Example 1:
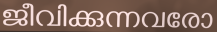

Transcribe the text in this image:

ജീവിക്കുന്നവരോ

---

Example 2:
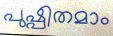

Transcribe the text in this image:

പുഷ്പിതമാം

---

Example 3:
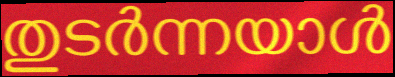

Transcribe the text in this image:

തുടർന്നയാൾ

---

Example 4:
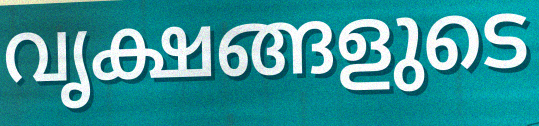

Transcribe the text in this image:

വൃക്ഷങ്ങളുടെ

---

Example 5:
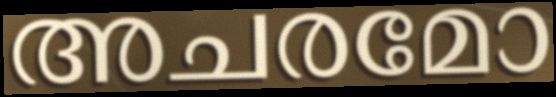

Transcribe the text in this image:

അചരമോ